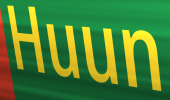
Huun